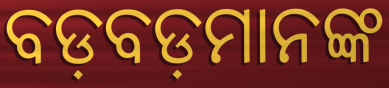
ବଡ଼ବଡ଼ମାନଙ୍କ